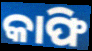
କାଫି